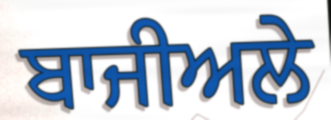
ਬਾਜੀਅਲੇ